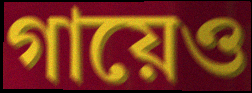
গায়েও